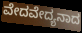
ವೇದವೇದ್ಯನಾದ